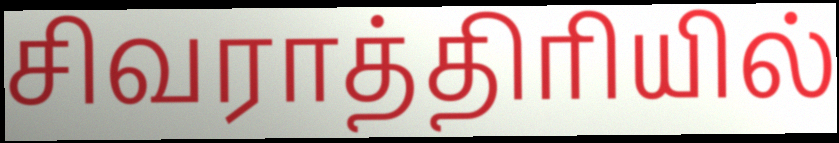
சிவராத்திரியில்